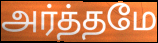
அர்த்தமே